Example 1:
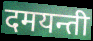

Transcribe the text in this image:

दमयन्ती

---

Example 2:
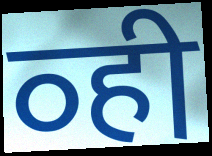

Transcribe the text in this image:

व्‍ही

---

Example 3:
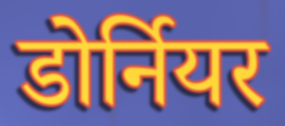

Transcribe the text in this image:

डोर्नियर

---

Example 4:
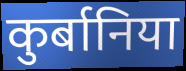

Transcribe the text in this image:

कुर्बानिया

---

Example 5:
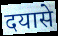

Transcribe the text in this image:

दयासे